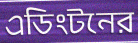
এডিংটনের